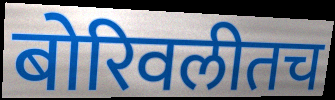
बोरिवलीतच